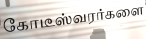
கோடீஸ்வரர்களை